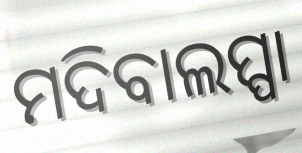
ମଦିବାଲପ୍ପା